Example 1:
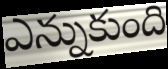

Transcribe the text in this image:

ఎన్నుకుంది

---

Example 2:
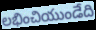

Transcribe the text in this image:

లభించియుండేది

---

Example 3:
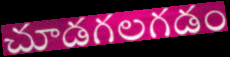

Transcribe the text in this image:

చూడగలగడం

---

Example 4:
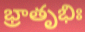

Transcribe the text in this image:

భ్రాతృభిః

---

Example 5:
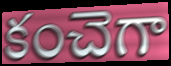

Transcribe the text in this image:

కంచెగా